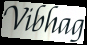
Vibhag